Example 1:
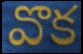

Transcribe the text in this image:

వొక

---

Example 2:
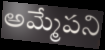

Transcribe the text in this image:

అమ్మేపని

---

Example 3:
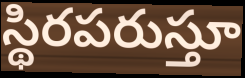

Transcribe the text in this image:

స్థిరపరుస్తూ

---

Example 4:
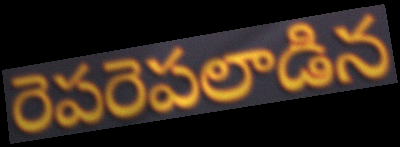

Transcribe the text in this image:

రెపరెపలాడిన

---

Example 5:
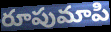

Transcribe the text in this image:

రూపుమాపి